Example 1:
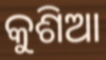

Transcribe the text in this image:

କୁଶିଆ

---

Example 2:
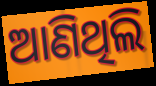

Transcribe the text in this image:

ଆଣିଥିଲି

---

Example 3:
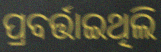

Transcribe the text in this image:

ପ୍ରବର୍ତ୍ତାଇଥିଲି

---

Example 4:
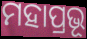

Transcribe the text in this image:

ମହାପ୍ରଭୂ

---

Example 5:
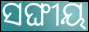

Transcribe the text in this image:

ସଙ୍ଘୀୟ